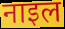
नाइल